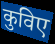
कुविए